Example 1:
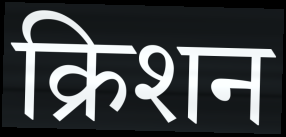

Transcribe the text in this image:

क्रिशन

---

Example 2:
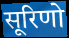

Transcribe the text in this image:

सूरिणो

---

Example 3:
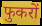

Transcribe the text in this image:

फुकरों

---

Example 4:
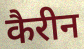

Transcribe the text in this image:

कैरीन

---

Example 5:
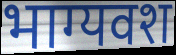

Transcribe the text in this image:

भाग्यवश